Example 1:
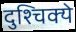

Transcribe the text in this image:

दुश्चिक्ये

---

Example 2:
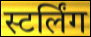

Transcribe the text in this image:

स्टर्लिंग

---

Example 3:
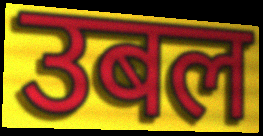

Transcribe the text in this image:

उबल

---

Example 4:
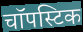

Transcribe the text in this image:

चॉपस्टिक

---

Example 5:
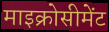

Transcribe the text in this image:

माइक्रोसीमेंट